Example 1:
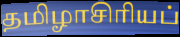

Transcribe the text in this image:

தமிழாசிரியப்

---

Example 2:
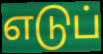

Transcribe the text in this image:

எடுப்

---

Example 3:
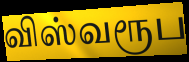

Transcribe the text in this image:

விஸ்வரூப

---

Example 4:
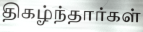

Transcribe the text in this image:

திகழ்ந்தார்கள்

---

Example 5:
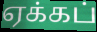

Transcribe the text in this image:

ஏக்கப்